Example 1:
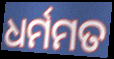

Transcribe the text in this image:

ଧର୍ମମତ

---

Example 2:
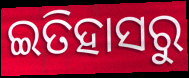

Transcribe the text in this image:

ଇତିହାସରୁ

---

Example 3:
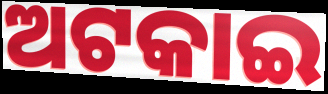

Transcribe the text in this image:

ଅଟକାଇ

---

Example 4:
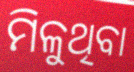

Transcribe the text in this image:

ମିଳୁଥିବା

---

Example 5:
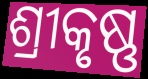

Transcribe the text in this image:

ଶ୍ରୀକୃଷ୍ଣ